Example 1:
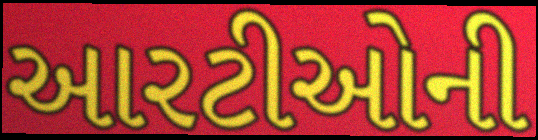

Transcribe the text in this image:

આરટીઓની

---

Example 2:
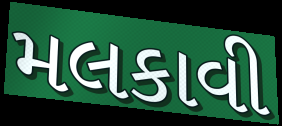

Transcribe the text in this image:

મલકાવી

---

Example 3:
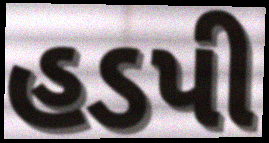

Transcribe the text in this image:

હડપી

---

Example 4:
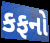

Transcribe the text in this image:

કફનો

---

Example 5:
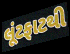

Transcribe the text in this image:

લૂંટફાટથી